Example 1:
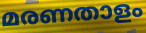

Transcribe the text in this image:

മരണതാളം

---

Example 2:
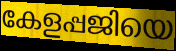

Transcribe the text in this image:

കേളപ്പജിയെ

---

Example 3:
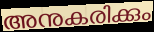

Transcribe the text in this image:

അനുകരിക്കും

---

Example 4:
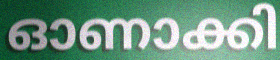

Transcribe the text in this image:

ഓണാക്കി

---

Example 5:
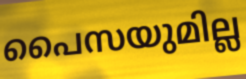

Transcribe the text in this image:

പൈസയുമില്ല